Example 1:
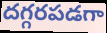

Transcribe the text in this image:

దగ్గరపడగా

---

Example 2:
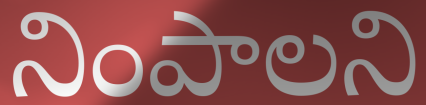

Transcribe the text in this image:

నింపాలని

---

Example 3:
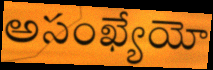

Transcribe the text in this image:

అసంఖ్యేయో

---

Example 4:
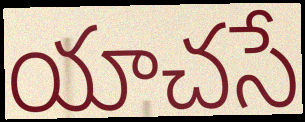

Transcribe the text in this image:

యాచసే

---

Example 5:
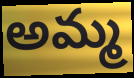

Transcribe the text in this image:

అమ్మ